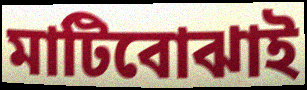
মাটিবোঝাই